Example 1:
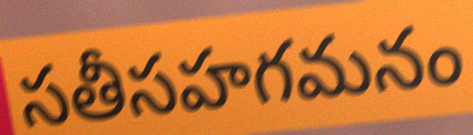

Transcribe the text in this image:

సతీసహగమనం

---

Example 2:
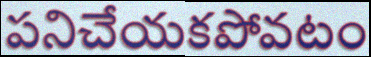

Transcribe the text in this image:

పనిచేయకపోవటం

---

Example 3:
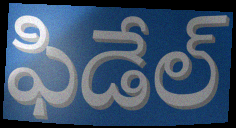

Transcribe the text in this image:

ఫిడేల్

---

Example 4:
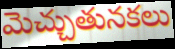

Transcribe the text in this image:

మెచ్చుతునకలు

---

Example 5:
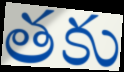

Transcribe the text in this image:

తకు